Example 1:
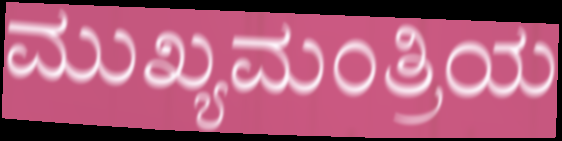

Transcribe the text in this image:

ಮುಖ್ಯಮಂತ್ರಿಯ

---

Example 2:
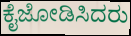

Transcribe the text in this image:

ಕೈಜೋಡಿಸಿದರು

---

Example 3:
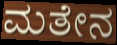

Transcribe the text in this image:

ಮತೇನ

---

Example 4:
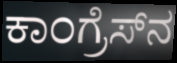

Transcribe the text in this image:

ಕಾಂಗ್ರೆಸ್‍ನ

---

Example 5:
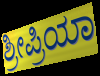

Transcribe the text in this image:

ಶ್ರೀಪ್ರಿಯಾ